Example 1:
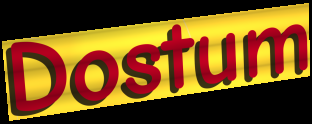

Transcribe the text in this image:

Dostum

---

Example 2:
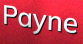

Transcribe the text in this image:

Payne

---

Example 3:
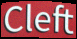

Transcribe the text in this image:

Cleft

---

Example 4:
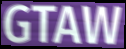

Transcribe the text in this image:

GTAW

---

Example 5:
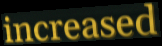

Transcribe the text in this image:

increased